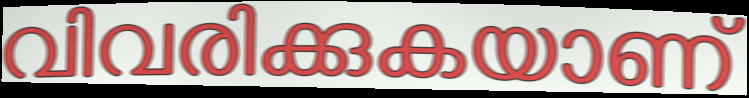
വിവരിക്കുകയാണ്